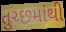
તુચ્છમાંથી